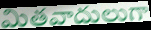
మితవాదులుగా